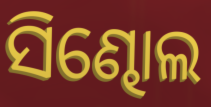
ସିଣ୍ଢୋଲ